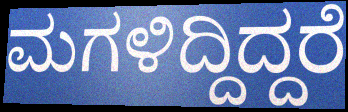
ಮಗಳಿದ್ದಿದ್ದರೆ